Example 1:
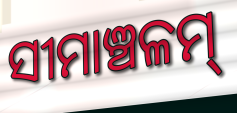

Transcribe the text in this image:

ସୀମାଞ୍ଚଳମ୍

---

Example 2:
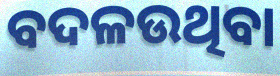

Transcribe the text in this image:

ବଦଳଉଥିବା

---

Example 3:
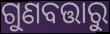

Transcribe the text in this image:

ଗୁଣବତ୍ତାରୁ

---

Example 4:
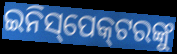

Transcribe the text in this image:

ଇନିସ୍‌ପେକ୍‌ଟରଙ୍କୁ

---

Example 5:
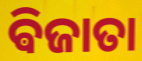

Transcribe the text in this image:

ଵିଜାତା